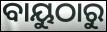
ବାୟୁଠାରୁ